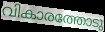
വികാരത്തോടു